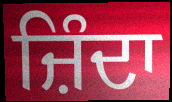
ਜ਼ਿੰਦਾ